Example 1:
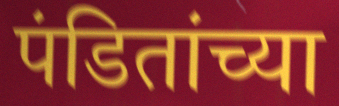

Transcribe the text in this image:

पंडितांच्या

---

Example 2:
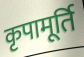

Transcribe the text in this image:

कृपामूर्ति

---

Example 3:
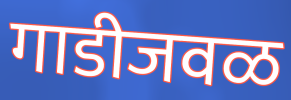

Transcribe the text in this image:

गाडीजवळ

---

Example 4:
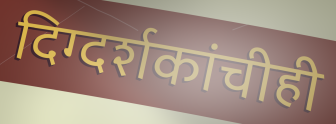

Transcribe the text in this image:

दिग्दर्शकांचीही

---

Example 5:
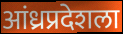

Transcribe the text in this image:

आंध्रप्रदेशला